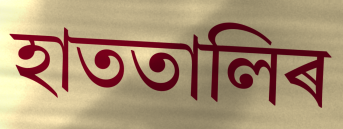
হাততালিৰ